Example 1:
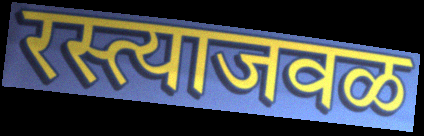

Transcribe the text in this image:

रस्त्याजवळ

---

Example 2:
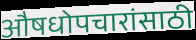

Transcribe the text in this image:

औषधोपचारांसाठी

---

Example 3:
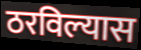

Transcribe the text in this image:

ठरविल्यास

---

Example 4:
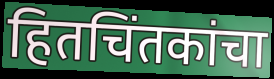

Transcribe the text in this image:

हितचिंतकांचा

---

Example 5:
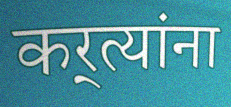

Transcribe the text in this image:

कर्त्यांना